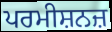
ਪਰਮੀਸ਼ਨਜ਼